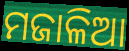
ମଜାଳିଆ